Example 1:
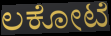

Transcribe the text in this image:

ಲಕೋಟೆ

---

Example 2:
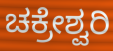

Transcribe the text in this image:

ಚಕ್ರೇಶ್ವರಿ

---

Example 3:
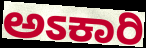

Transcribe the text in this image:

ಅಽಕಾರಿ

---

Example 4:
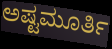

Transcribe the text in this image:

ಅಷ್ಟಮೂರ್ತಿ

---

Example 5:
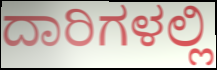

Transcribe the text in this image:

ದಾರಿಗಳಲ್ಲಿ